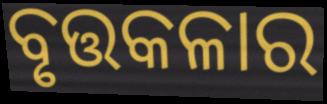
ବୃତ୍ତକଳାର